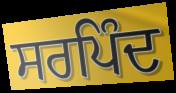
ਸਰਪਿੰਦ